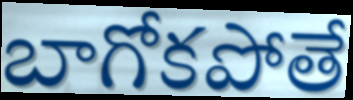
బాగోకపోతే